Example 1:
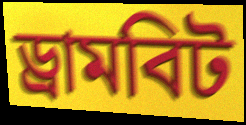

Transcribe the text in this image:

ড্রামবিট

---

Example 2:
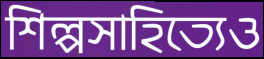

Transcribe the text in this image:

শিল্পসাহিত্যেও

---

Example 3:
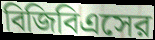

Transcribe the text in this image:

বিজিবিএসের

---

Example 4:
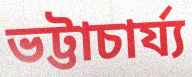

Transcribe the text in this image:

ভট্টাচার্য্য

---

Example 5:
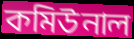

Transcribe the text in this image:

কমিউনাল